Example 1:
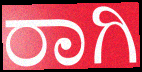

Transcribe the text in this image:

ರಾಗಿ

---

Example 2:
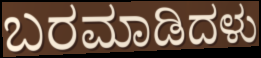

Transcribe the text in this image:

ಬರಮಾಡಿದಳು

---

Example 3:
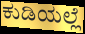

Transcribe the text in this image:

ಕುಡಿಯಲ್ಲೆ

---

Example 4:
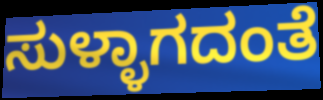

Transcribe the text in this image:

ಸುಳ್ಳಾಗದಂತೆ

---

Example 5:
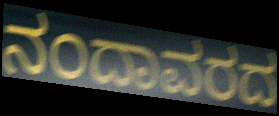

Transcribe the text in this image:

ನಂದಾವರದ